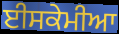
ਈਸਕੇਮੀਆ